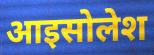
आइसोलेश